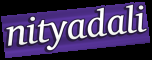
nityadali